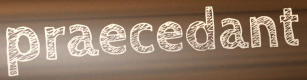
praecedant